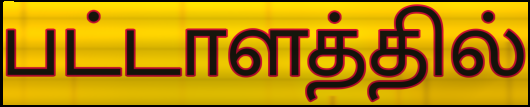
பட்டாளத்தில்